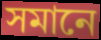
সমানে